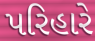
પરિહારે